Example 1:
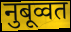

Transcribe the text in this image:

नुबूव्वत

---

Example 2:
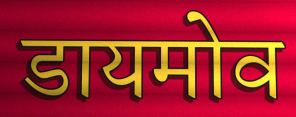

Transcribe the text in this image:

डायमोव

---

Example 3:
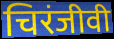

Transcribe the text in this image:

चिरंजीवी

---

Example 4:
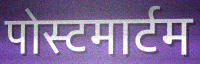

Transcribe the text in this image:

पोस्टमार्टम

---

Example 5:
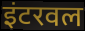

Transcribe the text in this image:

इंटरवल